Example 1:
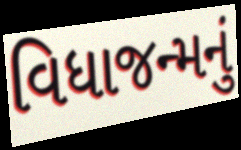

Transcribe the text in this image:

વિધાજન્મનું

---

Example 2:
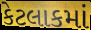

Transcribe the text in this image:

કેટલાકમાં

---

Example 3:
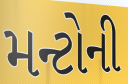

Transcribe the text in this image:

મન્ટોની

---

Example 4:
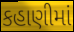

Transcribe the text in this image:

કહાણીમાં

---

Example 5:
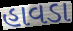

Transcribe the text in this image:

હાવડા